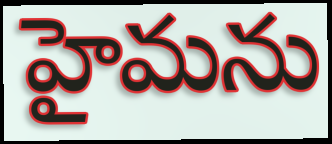
హైమను